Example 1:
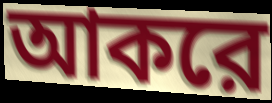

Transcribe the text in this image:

আকরে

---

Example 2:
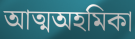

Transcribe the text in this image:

আত্মঅহমিকা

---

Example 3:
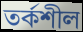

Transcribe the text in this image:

তর্কশীল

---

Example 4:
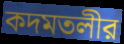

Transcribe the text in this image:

কদমতলীর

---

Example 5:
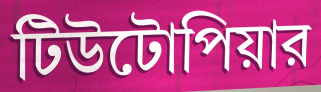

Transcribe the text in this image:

টিউটোপিয়ার